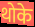
थोके